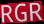
RGR